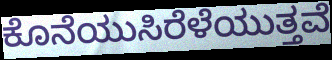
ಕೊನೆಯುಸಿರೆಳೆಯುತ್ತವೆ